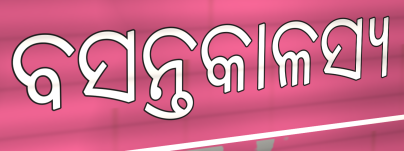
ବସନ୍ତକାଳସ୍ୟ